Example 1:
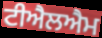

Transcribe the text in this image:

ਟੀਐਲਐਮ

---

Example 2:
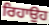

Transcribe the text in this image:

ਰਿਹਾਉਹ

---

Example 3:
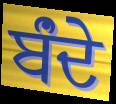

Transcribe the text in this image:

ਬਂੰਦੇ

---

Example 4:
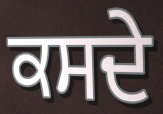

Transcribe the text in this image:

ਕਸਦੇ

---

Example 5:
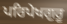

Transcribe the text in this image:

ਪਰਿਪੇਖਗੁਰੂ